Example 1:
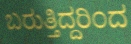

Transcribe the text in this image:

ಬರುತ್ತಿದ್ದರಿಂದ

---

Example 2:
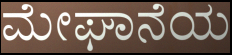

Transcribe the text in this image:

ಮೇಘಾನೆಯ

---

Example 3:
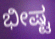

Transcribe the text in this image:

ಭೀಷ್ಟ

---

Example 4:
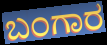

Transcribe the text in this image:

ಬಂಗಾರ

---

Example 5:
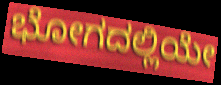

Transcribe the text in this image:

ಭೋಗದಲ್ಲಿಯೇ